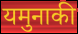
यमुनाकी